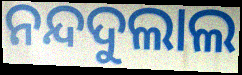
ନନ୍ଦଦୁଲାଲ